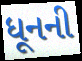
ધૂનની